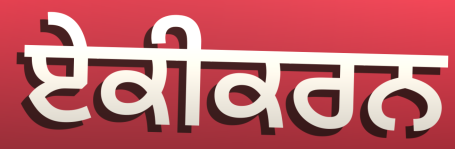
ਏਕੀਕਰਨ